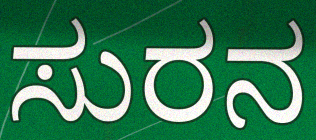
ಸುರನ